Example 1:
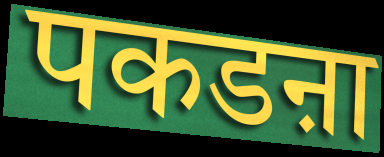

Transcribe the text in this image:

पकडऩा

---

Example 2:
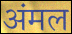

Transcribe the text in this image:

अंमल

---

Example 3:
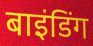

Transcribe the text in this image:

बाइंडिंग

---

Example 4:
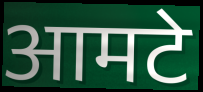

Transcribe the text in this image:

आमटे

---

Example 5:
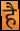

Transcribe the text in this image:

है